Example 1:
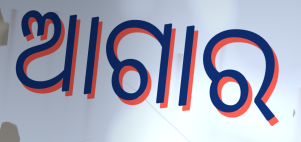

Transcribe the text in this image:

ଆଗାର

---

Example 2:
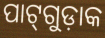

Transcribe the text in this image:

ପାଟ୍‌ଗୁଡ଼ାକ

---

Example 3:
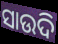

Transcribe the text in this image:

ସାଉଦି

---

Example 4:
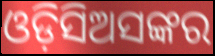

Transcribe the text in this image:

ଓଡ଼ିସିଅସଙ୍କର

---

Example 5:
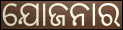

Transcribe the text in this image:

ଯୋଜନାର